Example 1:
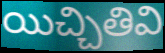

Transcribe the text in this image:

యిచ్చితివి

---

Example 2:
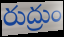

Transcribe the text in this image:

రుద్రుం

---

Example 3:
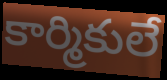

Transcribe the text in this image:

కార్మికులే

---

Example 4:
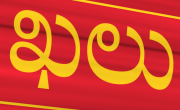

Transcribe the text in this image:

ఖలు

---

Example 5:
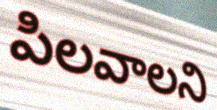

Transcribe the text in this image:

పిలవాలని